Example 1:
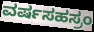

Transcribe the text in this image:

ವರ್ಷಸಹಸ್ರಂ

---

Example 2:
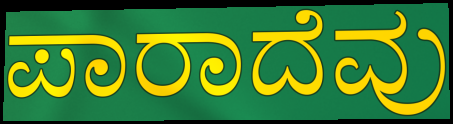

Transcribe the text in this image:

ಪಾರಾದೆವು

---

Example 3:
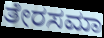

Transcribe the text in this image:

ತೇರಸಮಾ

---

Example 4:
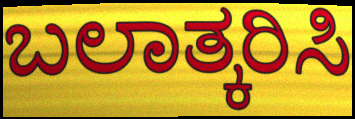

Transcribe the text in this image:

ಬಲಾತ್ಕರಿಸಿ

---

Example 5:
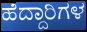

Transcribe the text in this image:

ಹೆದ್ದಾರಿಗಳ